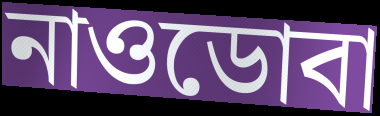
নাওডোবা